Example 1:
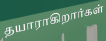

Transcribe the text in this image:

தயாராகிறார்கள்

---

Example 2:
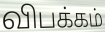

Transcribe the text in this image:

விபக்கம்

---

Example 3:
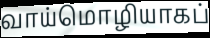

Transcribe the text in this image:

வாய்மொழியாகப்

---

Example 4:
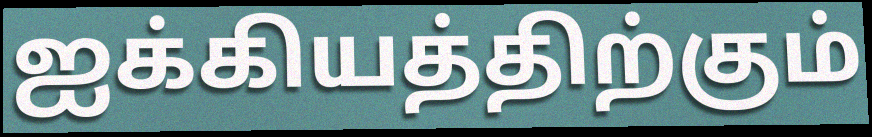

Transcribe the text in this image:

ஐக்கியத்திற்கும்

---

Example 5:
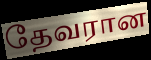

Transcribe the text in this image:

தேவரான